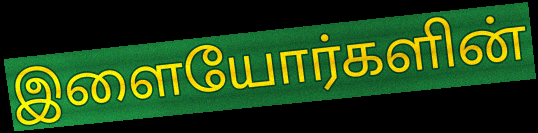
இளையோர்களின்